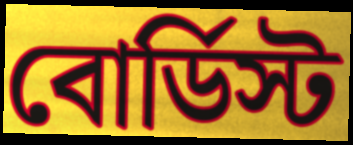
বোর্ডিস্ট